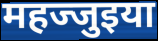
महज्जुइया